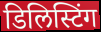
डिलिस्टिंग